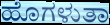
ಹೊಗಳುತಾ